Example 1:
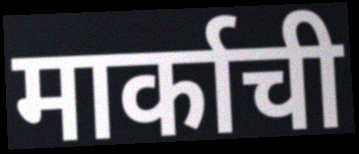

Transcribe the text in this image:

मार्काची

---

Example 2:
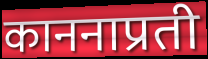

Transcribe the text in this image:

काननाप्रती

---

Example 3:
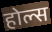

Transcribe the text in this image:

होल्स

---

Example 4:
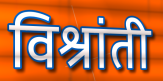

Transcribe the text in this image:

विश्रांती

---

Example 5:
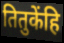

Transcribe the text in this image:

तितुकेंहि